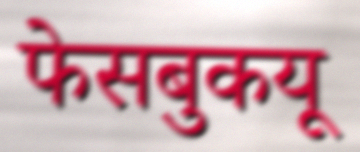
फेसबुकयू